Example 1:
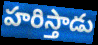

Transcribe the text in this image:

హరిస్తాడు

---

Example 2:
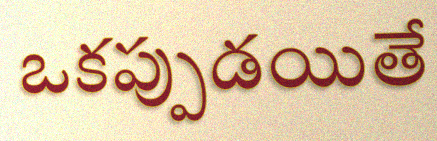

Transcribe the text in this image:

ఒకప్పుడయితే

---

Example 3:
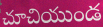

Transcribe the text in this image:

చూచియుండ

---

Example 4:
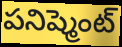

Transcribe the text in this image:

పనిష్మెంట్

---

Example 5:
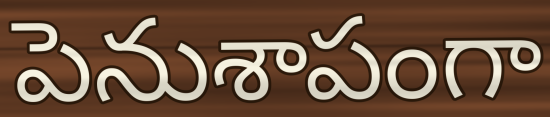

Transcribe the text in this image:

పెనుశాపంగా